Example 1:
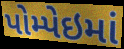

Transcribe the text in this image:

પોમ્પેઇમાં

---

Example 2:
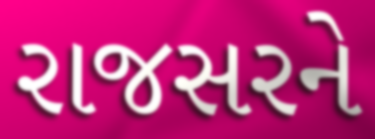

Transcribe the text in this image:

રાજસરને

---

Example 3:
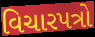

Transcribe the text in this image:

વિચારપત્રો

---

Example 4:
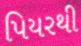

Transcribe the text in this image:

પિયરથી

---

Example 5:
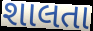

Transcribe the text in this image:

શાલતા